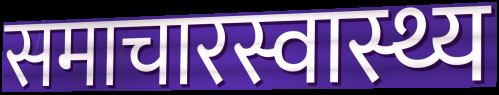
समाचारस्वास्थ्य